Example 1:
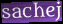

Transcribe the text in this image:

sachej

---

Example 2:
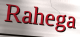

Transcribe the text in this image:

Rahega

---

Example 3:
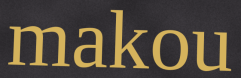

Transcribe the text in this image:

makou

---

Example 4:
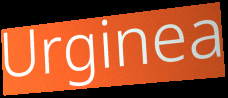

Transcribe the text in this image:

Urginea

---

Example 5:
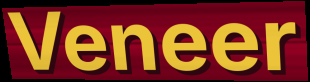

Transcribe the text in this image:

Veneer